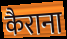
कैराना